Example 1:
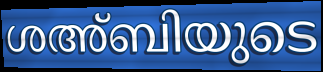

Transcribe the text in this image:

ശഅ്ബിയുടെ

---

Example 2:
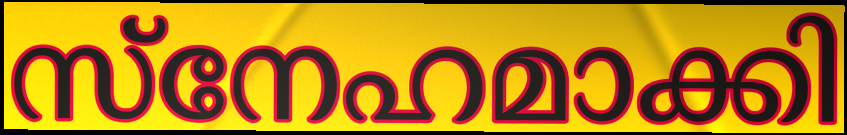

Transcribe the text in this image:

സ്നേഹമാക്കി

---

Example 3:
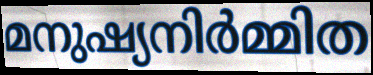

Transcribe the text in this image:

മനുഷ്യനിർമ്മിത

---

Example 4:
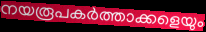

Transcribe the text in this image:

നയരൂപകർത്താക്കളെയും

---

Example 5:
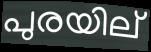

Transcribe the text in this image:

പുരയില്